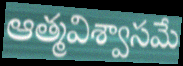
ఆత్మవిశ్వాసమే